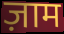
ज़ाम